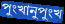
পুংখানুপুংখ